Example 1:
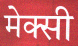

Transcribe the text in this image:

मेक्सी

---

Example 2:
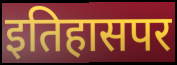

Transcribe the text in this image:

इतिहासपर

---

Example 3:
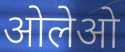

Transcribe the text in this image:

ओलेओ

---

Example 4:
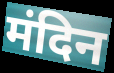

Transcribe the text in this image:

मंदिन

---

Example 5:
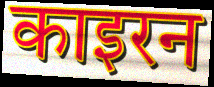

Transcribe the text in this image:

काइरन